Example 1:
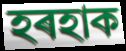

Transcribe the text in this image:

হৰহাক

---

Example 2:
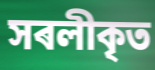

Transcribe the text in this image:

সৰলীকৃত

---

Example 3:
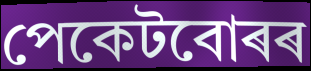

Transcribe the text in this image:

পেকেটবোৰৰ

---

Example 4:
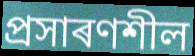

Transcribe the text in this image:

প্ৰসাৰণশীল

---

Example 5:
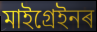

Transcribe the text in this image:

মাইগ্ৰেইনৰ